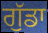
ਗੁੱਡਾ